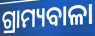
ଗ୍ରାମ୍ୟବାଳା